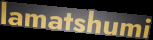
lamatshumi